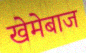
खेमेबाज